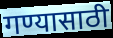
गण्यासाठी